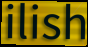
ilish